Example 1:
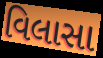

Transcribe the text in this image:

વિલાસા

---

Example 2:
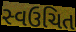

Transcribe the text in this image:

સ્વઉચિત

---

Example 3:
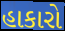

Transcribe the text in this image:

હાકારો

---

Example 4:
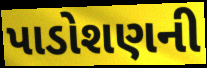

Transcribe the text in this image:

પાડોશણની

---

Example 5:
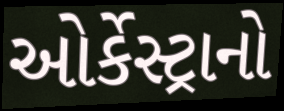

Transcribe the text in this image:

ઓર્કેસ્ટ્રાનો